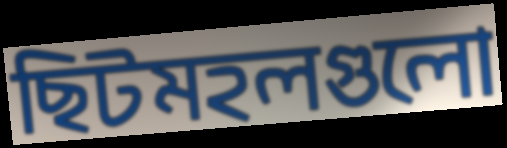
ছিটমহলগুলো